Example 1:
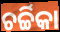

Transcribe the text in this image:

ଚର୍ଚ୍ଚିକା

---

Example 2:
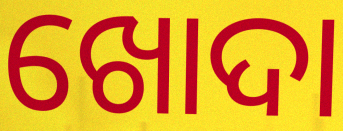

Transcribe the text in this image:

ଖୋଦା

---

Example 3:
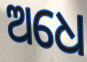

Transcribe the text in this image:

ଅଧେ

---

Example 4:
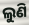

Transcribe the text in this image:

ଲୁଣି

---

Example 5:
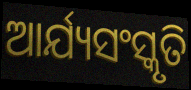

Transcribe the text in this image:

ଆର୍ଯ୍ୟସଂସ୍କୃତି